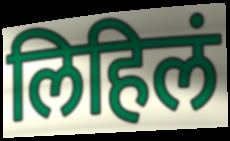
लिहिलं